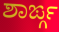
ಶಾರ್ಙ್ಗ